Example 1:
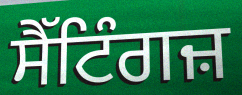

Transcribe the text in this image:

ਸੈੱਟਿੰਗਜ਼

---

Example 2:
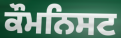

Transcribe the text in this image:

ਕੌਮਨਿਸਟ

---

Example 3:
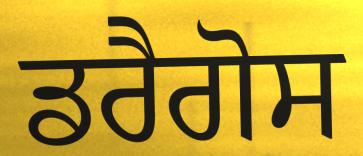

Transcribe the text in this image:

ਡਰੈਗੋਸ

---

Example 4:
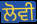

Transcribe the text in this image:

ਲੋਵੀ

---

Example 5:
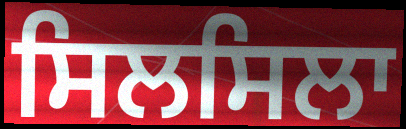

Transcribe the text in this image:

ਸਿਲਸਿਲਾ